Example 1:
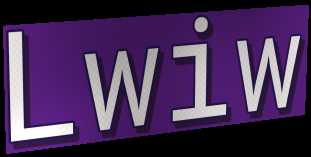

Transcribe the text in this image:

Lwiw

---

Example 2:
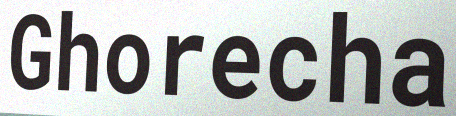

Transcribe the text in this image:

Ghorecha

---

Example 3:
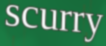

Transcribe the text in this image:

scurry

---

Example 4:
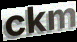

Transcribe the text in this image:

ckm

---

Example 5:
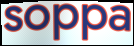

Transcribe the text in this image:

soppa